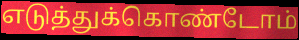
எடுத்துக்கொண்டோம்